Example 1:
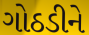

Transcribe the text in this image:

ગોઠડીને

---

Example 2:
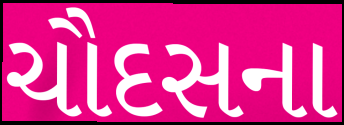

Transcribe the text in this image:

ચૌદસના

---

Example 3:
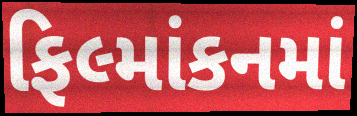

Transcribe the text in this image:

ફિલ્માંકનમાં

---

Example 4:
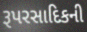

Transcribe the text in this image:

રૂપરસાદિકની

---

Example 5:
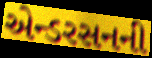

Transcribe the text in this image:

એન્ડરસનની